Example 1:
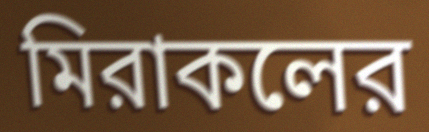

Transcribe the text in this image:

মিরাকলের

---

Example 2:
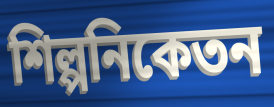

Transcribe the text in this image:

শিল্পনিকেতন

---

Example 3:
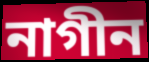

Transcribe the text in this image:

নাগীন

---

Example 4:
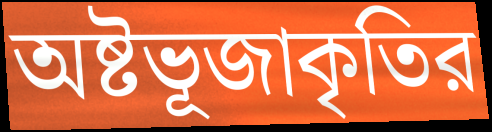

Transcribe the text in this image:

অষ্টভূজাকৃতির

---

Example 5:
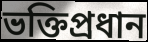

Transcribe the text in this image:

ভক্তিপ্রধান